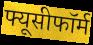
फ्यूसीफॉर्म